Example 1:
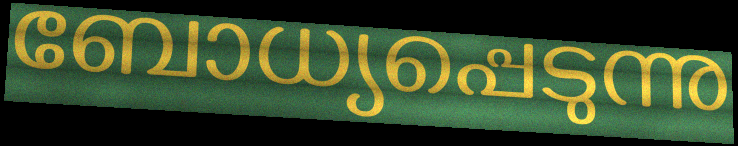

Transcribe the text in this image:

ബോധ്യപ്പെടുന്നു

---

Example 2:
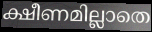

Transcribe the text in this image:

ക്ഷീണമില്ലാതെ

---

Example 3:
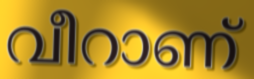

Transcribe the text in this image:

വീറാണ്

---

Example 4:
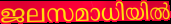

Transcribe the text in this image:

ജലസമാധിയിൽ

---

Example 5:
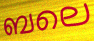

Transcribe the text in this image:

ബലെ